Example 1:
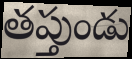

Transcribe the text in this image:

తప్తుండు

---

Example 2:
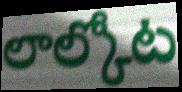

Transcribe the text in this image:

లాల్కోట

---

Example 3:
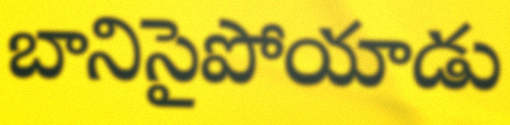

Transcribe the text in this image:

బానిసైపోయాడు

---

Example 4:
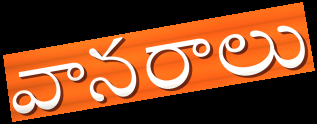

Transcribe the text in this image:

వానరాలు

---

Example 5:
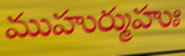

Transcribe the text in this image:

ముహుర్ముహుః